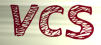
vcs